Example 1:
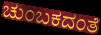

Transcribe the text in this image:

ಚುಂಬಕದಂತೆ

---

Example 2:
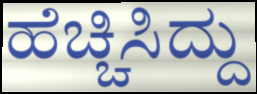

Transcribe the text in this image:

ಹೆಚ್ಚಿಸಿದ್ದು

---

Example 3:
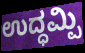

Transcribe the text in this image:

ಉದ್ಧಮ್ಪಿ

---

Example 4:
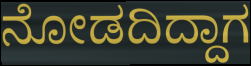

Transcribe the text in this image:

ನೋಡದಿದ್ದಾಗ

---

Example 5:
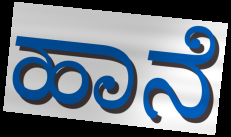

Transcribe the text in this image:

ಹಾನೆ